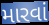
મારવાં